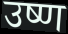
उष्ण